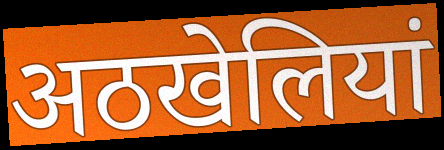
अठखेलियां